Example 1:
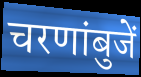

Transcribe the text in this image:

चरणांबुजें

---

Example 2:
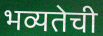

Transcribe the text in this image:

भव्यतेची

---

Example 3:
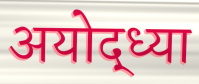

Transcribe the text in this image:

अयोद्ध्या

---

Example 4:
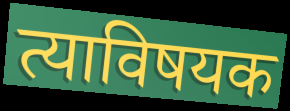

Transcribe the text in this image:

त्याविषयक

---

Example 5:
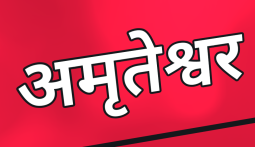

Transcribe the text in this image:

अमृतेश्वर